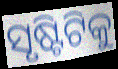
ସୃଷ୍ଟିଟିକୁ